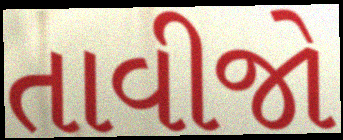
તાવીજો